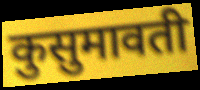
कुसुमावती